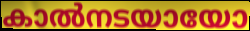
കാൽനടയായോ